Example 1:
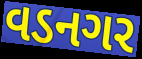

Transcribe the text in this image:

વડનગર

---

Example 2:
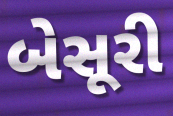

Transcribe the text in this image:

બેસૂરી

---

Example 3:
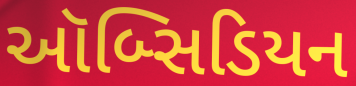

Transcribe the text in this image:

ઑબ્સિડિયન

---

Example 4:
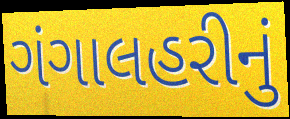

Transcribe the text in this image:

ગંગાલહરીનું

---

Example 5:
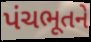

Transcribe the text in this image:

પંચભૂતને